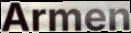
Armen